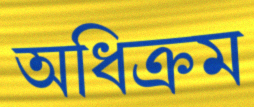
অধিক্রম